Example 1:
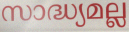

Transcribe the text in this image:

സാദ്ധ്യമല്ല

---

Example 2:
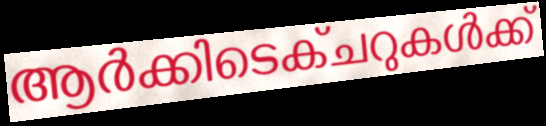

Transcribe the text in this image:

ആർക്കിടെക്ചറുകൾക്ക്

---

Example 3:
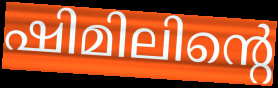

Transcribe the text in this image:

ഷിമിലിന്റെ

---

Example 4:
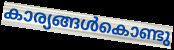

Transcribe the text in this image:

കാര്യങ്ങൾകൊണ്ടു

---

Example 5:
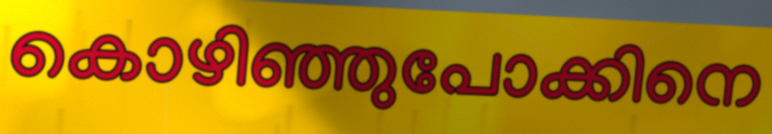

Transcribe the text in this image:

കൊഴിഞ്ഞുപോക്കിനെ